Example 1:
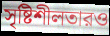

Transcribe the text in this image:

সৃষ্টিশীলতারও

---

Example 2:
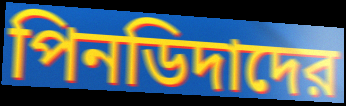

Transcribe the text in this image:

পিনডিদাদের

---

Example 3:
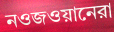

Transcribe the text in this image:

নওজওয়ানেরা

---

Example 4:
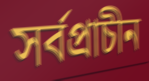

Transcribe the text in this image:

সর্বপ্রাচীন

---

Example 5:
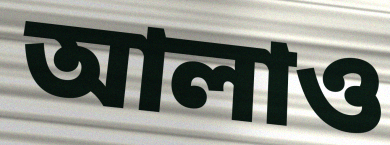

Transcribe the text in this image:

আলাও